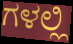
ಗಳಲ್ಲಿ